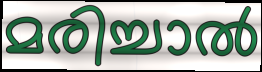
മരിച്ചാൽ